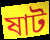
ষাট